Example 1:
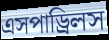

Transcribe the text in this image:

এসপাড্রিলস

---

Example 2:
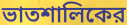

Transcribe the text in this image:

ভাতশালিকের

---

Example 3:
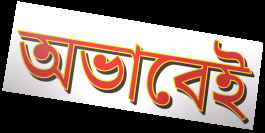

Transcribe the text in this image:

অভাবেই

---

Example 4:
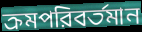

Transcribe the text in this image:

ক্রমপরিবর্তমান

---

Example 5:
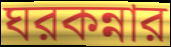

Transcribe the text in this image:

ঘরকন্নার